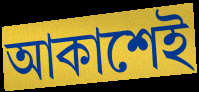
আকাশেই